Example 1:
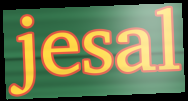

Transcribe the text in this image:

jesal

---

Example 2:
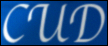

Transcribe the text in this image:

CUD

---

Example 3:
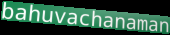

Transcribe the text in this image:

bahuvachanaman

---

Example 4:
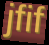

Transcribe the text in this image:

jfif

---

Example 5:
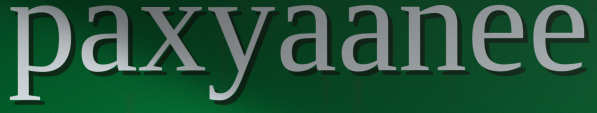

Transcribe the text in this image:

paxyaanee